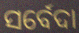
ସର୍ବେଦା